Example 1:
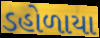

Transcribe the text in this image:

ડહોળાયા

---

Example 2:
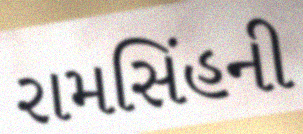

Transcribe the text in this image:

રામસિંહની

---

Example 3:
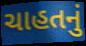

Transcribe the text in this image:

ચાહતનું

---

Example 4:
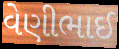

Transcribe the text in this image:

વેણીભાઈ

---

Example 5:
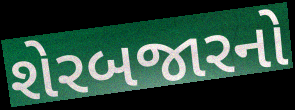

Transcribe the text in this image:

શેરબજારનો